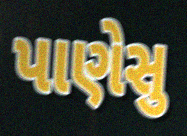
પાણેસુ